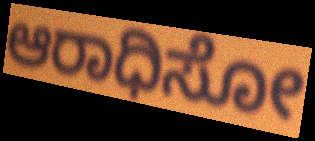
ಆರಾಧಿಸೋ